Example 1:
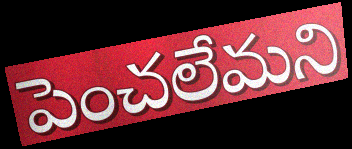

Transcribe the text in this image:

పెంచలేమని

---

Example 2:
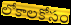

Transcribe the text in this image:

లోకాలకోసం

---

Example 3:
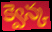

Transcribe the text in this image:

క్వెన్క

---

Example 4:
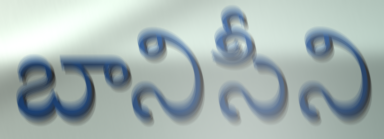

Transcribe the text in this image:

బానిసీని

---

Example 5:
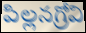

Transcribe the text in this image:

పిల్లనగ్రోవి